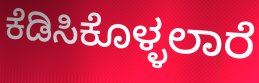
ಕೆಡಿಸಿಕೊಳ್ಳಲಾರೆ